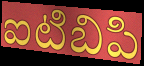
ఐటిబిపి